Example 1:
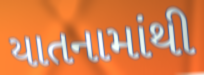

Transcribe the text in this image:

યાતનામાંથી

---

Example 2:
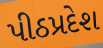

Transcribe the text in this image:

પીઠપ્રદેશ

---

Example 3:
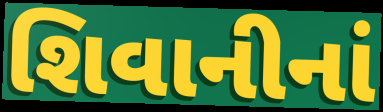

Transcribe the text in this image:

શિવાનીનાં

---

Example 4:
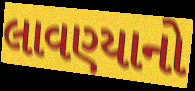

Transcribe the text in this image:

લાવણ્યાનો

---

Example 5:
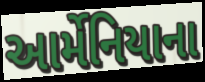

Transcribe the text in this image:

આર્મેનિયાના